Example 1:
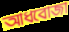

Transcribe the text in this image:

আধবোজা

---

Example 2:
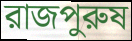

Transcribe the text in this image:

রাজপুরুষ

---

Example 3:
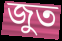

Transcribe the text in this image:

জুত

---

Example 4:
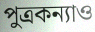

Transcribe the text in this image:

পুত্রকন্যাও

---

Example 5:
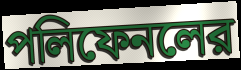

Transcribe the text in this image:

পলিফেনলের